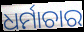
ଧର୍ମାଚାର